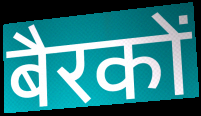
बैरकों